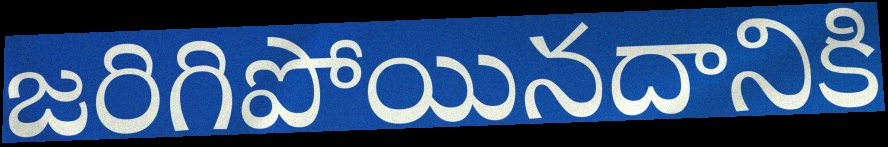
జరిగిపోయినదానికి